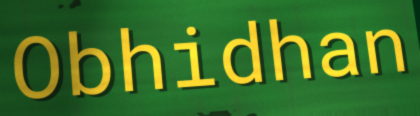
Obhidhan